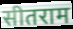
सीतराम